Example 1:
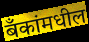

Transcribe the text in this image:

बँकांमधील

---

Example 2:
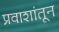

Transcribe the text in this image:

प्रवाशांतून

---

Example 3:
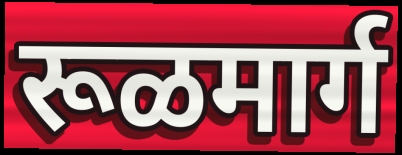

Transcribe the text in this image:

रूळमार्ग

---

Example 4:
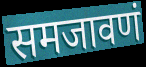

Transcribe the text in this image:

समजावणं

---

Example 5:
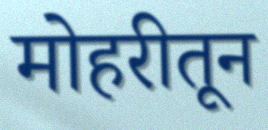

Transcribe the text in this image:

मोहरीतून